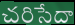
చరిసేదా